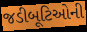
જડીબૂટિઓની